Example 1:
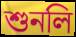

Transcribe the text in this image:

শুনলি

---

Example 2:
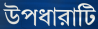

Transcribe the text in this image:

উপধারাটি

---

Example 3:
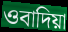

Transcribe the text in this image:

ওবাদিয়া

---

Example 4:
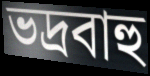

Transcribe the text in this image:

ভদ্রবাহু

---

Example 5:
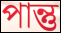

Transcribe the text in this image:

পান্তু